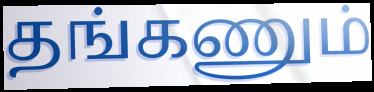
தங்கணும்